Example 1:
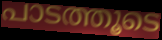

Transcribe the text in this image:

പാടത്തൂടെ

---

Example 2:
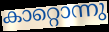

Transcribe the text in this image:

കാറ്റൊന്നു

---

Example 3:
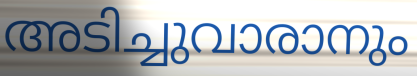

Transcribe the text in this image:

അടിച്ചുവാരാനും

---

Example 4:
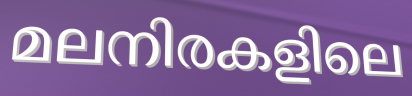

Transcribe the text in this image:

മലനിരകളിലെ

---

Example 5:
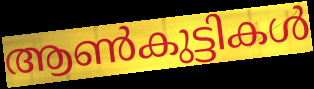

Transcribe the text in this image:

ആൺകുട്ടികൾ